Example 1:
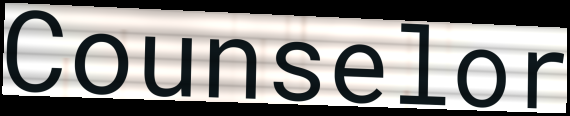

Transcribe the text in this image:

Counselor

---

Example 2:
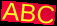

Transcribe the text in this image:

ABC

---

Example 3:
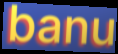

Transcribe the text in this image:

banu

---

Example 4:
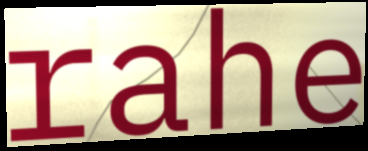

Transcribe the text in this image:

rahe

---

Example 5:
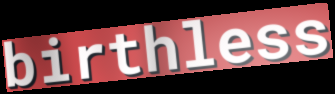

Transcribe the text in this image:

birthless